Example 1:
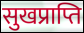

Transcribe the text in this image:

सुखप्राप्ति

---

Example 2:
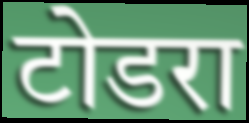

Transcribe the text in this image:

टोडरा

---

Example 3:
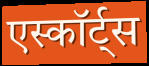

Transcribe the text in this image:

एस्कॉर्ट्स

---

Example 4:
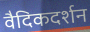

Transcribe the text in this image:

वैदिकदर्शन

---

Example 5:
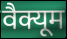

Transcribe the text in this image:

वैक्यूम